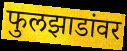
फुलझाडांवर